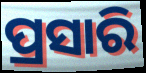
ପ୍ରସାରି